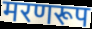
मरणरूप